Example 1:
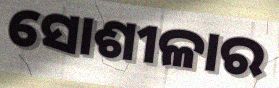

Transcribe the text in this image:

ସୋଶୀଳାର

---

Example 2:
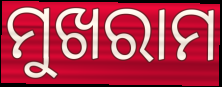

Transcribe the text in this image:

ମୁଖରାମ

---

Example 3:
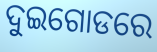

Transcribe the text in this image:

ଦୁଇଗୋଡରେ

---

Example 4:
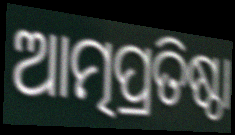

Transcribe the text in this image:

ଆତ୍ମପ୍ରତିଷ୍ଠା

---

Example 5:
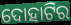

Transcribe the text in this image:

ଦୋହାଟିର